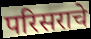
परिसराचे